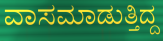
ವಾಸಮಾಡುತ್ತಿದ್ದ